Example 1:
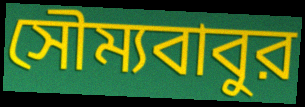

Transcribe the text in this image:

সৌম্যবাবুর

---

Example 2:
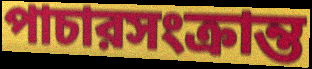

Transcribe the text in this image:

পাচারসংক্রান্ত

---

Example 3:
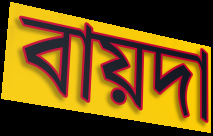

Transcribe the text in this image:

বায়দা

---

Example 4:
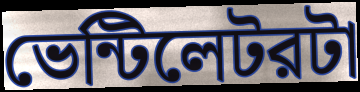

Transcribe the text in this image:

ভেন্টিলেটরটা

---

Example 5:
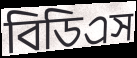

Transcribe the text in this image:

বিডিএস